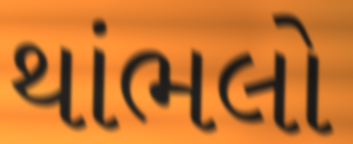
થાંભલો